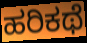
ಹರಿಕಥೆ